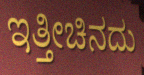
ಇತ್ತೀಚಿನದು